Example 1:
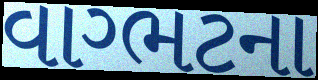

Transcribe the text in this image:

વાગ્ભટના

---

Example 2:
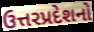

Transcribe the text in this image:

ઉત્તરપ્રદેશનો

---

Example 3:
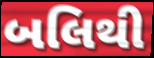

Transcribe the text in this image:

બલિથી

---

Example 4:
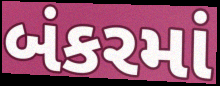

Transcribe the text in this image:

બંકરમાં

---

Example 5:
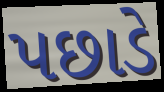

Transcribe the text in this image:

પછાડે